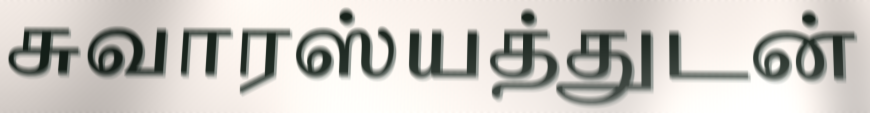
சுவாரஸ்யத்துடன்